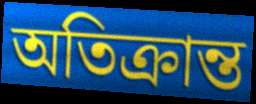
অতিক্রান্ত